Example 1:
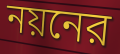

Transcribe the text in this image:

নয়নের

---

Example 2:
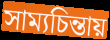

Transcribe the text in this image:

সাম্যচিন্তায়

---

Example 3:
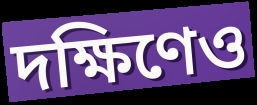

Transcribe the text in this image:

দক্ষিণেও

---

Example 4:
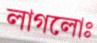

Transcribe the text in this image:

লাগলোঃ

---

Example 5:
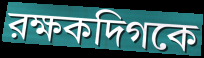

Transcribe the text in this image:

রক্ষকদিগকে